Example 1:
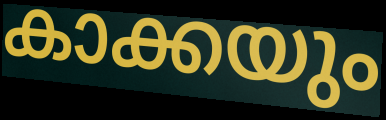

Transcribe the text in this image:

കാക്കയും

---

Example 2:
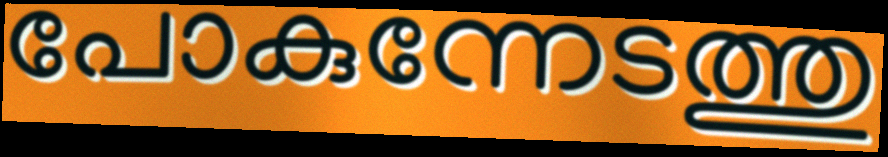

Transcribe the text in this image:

പോകുന്നേടത്തു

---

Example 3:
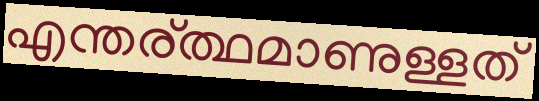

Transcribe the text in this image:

എന്തര്ത്ഥമാണുള്ളത്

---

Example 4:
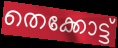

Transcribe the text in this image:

തെക്കോട്ട്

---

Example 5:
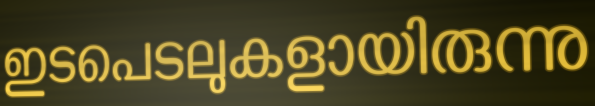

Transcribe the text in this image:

ഇടപെടലുകളായിരുന്നു